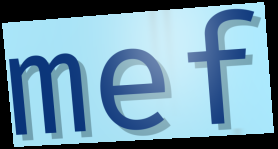
mef